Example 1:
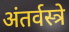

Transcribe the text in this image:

अंतर्वस्त्रे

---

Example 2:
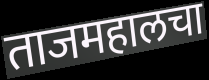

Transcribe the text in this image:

ताजमहालचा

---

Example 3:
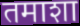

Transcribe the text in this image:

तमाशा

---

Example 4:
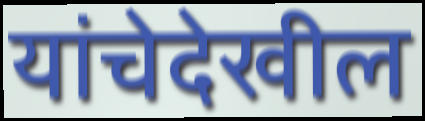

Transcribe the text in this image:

यांचेदेखील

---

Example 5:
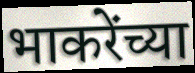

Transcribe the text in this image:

भाकरेंच्या